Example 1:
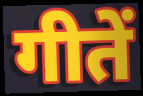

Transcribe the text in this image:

गीतें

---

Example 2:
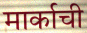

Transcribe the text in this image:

मार्काची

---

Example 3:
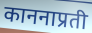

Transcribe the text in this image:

काननाप्रती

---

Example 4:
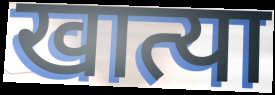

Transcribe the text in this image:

खात्या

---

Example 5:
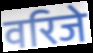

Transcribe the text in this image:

वरिजे